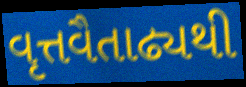
વૃત્તવૈતાઢ્યથી